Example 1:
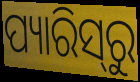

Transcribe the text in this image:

ପ୍ୟାରିସ୍‌ରୁ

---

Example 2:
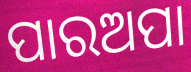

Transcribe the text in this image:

ପାରଅପା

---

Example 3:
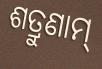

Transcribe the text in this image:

ଶତ୍ରୁଣାମ୍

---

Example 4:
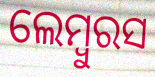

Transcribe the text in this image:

ଲେମ୍ବୁରସ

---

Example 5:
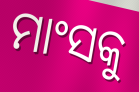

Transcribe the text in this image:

ମାଂସକୁ